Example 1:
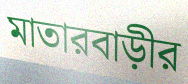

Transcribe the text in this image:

মাতারবাড়ীর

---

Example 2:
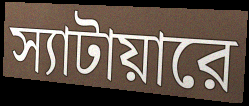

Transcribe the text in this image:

স্যাটায়ারে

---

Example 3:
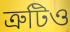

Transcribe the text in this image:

ত্রুটিও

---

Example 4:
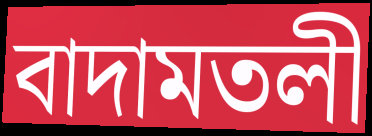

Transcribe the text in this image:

বাদামতলী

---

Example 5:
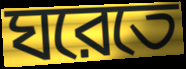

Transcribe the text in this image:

ঘরেতে